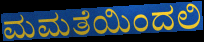
ಮಮತೆಯಿಂದಲಿ